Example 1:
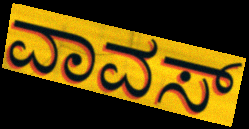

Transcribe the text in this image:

ವಾವಸ್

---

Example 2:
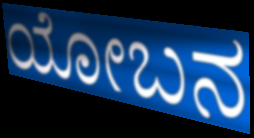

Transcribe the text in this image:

ಯೋಬನ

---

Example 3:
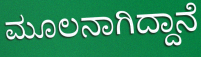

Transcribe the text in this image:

ಮೂಲನಾಗಿದ್ದಾನೆ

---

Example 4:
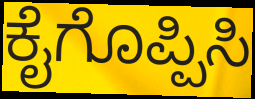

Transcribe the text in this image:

ಕೈಗೊಪ್ಪಿಸಿ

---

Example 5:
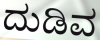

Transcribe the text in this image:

ದುಡಿವ